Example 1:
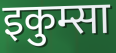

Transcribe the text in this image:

इकुम्सा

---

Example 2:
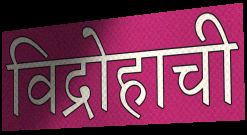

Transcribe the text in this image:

विद्रोहाची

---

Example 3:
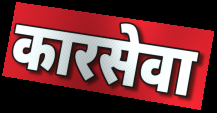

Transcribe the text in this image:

कारसेवा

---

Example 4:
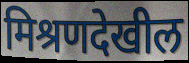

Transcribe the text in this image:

मिश्रणदेखील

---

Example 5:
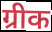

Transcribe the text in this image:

ग्रीक